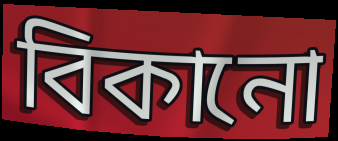
বিকানো